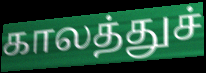
காலத்துச்